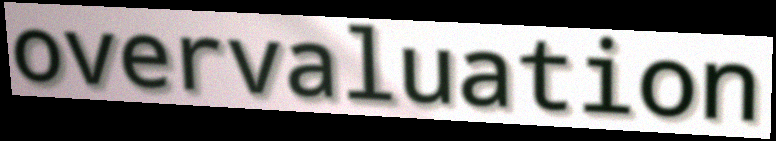
overvaluation